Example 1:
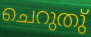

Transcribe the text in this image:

ചെറുതു്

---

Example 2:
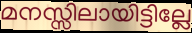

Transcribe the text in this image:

മനസ്സിലായിട്ടില്ലേ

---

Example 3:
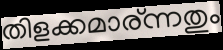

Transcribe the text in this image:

തിളക്കമാര്ന്നതും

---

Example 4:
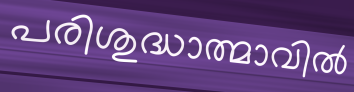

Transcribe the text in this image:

പരിശുദ്ധാത്മാവിൽ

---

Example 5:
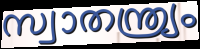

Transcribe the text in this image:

സ്വാതന്ത്ര്യം